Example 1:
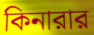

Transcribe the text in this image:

কিনারার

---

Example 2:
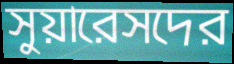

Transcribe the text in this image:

সুয়ারেসদের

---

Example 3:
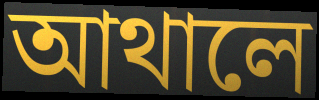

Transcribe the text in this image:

আথালে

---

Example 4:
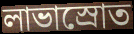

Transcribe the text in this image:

লাভাস্রোত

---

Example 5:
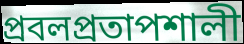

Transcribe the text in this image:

প্রবলপ্রতাপশালী